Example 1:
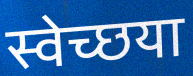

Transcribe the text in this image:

स्वेच्छया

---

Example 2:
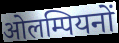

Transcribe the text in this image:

ओलम्पियनों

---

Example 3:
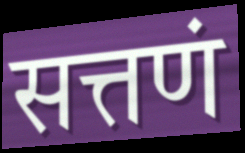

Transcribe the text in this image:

सत्तणं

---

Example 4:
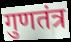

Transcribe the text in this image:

गुणतंत्र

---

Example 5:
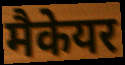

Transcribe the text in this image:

मैकेयर